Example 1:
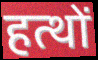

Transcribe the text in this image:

हत्थों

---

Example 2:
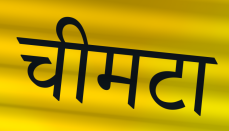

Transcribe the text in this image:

चीमटा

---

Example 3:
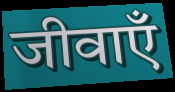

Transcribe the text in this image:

जीवाएँ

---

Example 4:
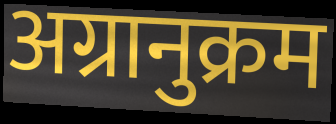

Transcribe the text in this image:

अग्रानुक्रम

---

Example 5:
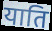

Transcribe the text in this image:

याति